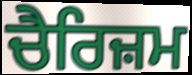
ਚੈਰਿਜ਼ਮ